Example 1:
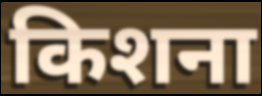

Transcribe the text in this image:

किशना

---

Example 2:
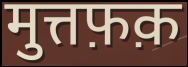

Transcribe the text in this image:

मुत्तफ़क़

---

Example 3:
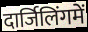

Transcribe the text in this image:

दार्जिलिंगमें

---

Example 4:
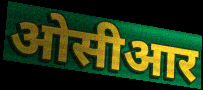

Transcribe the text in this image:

ओसीआर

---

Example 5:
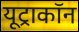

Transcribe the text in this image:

यूट्राकॉन